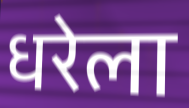
धरेला